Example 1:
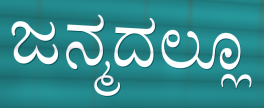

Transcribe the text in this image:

ಜನ್ಮದಲ್ಲೂ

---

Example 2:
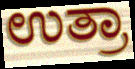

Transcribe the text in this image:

ಉತ್ರಾ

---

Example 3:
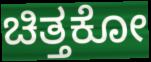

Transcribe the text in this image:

ಚಿತ್ತಕೋ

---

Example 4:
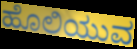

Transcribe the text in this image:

ಹೊಲಿಯುವ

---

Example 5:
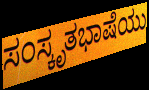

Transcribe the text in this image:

ಸಂಸ್ಕೃತಭಾಷೆಯು